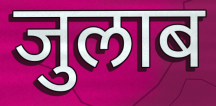
जुलाब